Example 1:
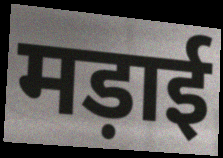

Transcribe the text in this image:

मड़ाई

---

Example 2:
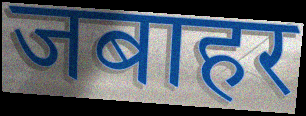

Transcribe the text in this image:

जबाहर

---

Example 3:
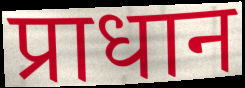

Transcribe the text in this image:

प्राधान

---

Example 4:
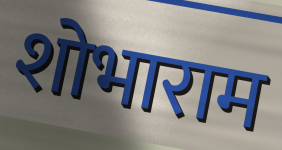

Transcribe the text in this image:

शोभाराम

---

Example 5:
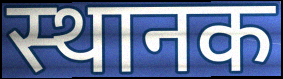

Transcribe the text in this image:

स्थानक